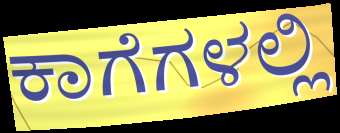
ಕಾಗೆಗಳಲ್ಲಿ